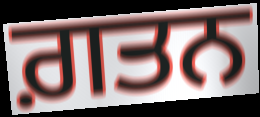
ਗ਼ਤਨ